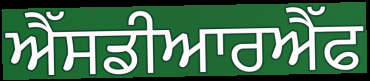
ਐੱਸਡੀਆਰਐੱਫ